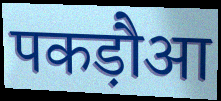
पकड़ौआ